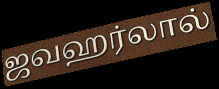
ஜவஹர்லால்